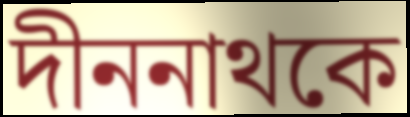
দীননাথকে